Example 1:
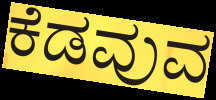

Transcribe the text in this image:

ಕೆಡವುವ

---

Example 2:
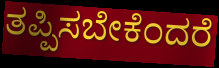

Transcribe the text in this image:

ತಪ್ಪಿಸಬೇಕೆಂದರೆ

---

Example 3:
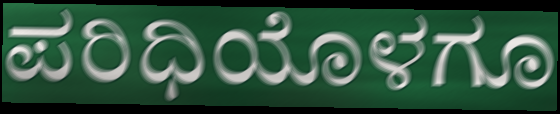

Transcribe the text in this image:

ಪರಿಧಿಯೊಳಗೂ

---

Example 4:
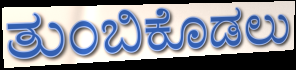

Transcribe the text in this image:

ತುಂಬಿಕೊಡಲು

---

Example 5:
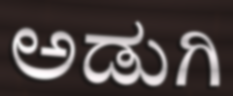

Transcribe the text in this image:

ಅಡುಗಿ